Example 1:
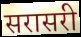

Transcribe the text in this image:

सरासरी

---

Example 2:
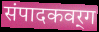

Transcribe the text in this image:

संपादकवर्ग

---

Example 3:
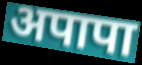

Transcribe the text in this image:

अपापा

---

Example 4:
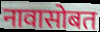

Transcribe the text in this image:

नावासोबत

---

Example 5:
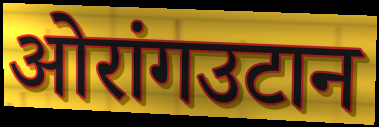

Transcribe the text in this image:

ओरांगउटान